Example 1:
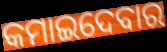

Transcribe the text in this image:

କମାଇଦେବାର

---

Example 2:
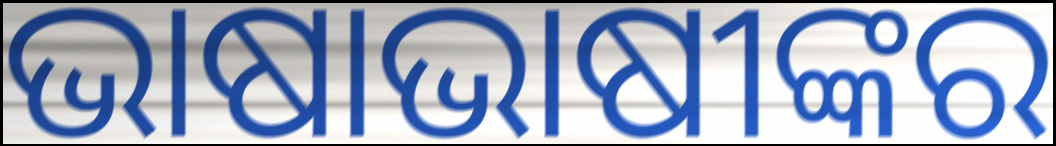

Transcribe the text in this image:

ଭାଷାଭାଷୀଙ୍କର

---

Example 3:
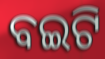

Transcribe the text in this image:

ବଇଟି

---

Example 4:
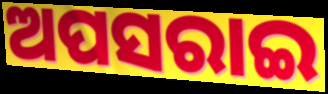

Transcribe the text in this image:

ଅପସରାଇ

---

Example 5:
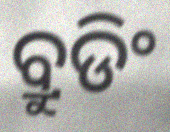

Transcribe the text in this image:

ବ୍ରୁଡିଂ